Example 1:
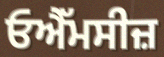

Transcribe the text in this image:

ਓਐੱਮਸੀਜ਼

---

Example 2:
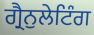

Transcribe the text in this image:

ਗ੍ਰੈਨੁਲੇਟਿੰਗ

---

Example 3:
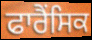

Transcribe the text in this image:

ਫਾਰੈਂਸਿਕ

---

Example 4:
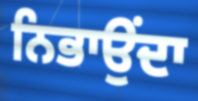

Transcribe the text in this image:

ਨਿਭਾਉਂਦਾ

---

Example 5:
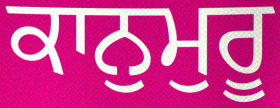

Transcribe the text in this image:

ਕਾਨੁਮੁਰੂ